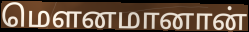
மௌனமானான்